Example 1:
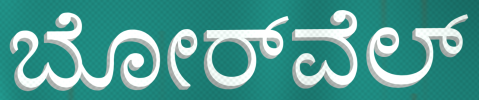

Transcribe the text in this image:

ಬೋರ್‌ವೆಲ್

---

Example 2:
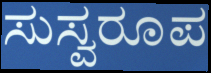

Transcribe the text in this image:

ಸುಸ್ವರೂಪ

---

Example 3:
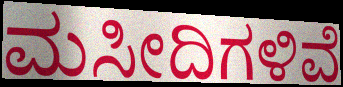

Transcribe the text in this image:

ಮಸೀದಿಗಳಿವೆ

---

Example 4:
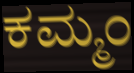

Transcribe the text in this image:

ಕಮ್ಮಂ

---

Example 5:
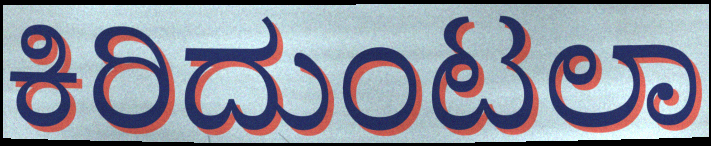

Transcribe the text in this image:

ಕಿರಿದುಂಟಲಾ